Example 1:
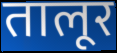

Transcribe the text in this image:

तालूर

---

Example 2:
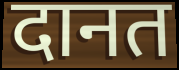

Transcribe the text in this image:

दानत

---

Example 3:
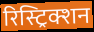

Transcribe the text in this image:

रिस्ट्रिक्शन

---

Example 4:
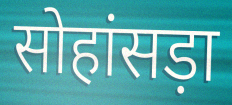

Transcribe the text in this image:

सोहांसड़ा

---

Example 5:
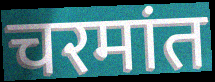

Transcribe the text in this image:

चरमांत